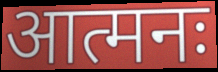
आत्मनः